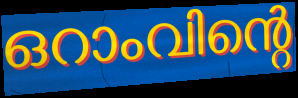
ഒറാംവിന്റെ